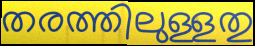
തരത്തിലുള്ളതു